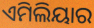
ଏମିଲିୟାର